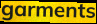
garments